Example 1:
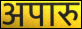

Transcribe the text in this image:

अपारु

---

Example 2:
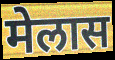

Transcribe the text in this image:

मेलास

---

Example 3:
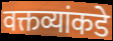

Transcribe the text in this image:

वक्तव्यांकडे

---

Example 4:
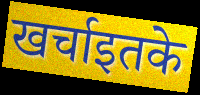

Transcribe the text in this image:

खर्चाइतके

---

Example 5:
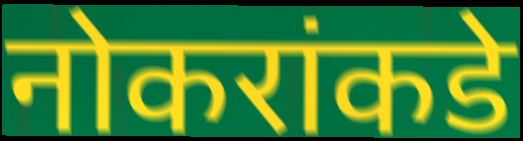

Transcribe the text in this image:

नोकरांकडे